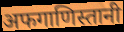
अफगाणिस्तानी